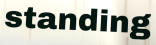
standing